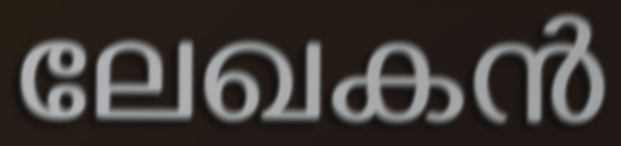
ലേഖകൻ